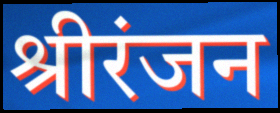
श्रीरंजन